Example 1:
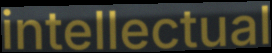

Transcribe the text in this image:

intellectual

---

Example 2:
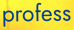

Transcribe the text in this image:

profess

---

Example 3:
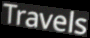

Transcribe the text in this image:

Travels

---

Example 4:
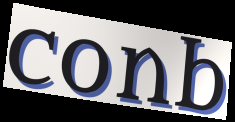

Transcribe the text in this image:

conb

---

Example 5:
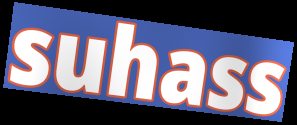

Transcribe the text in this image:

suhass